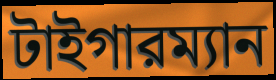
টাইগারম্যান